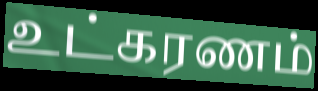
உட்கரணம்